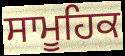
ਸਾਮੂਹਿਕ